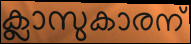
ക്ലാസുകാരന്